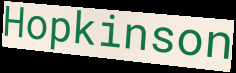
Hopkinson